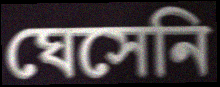
ঘেসেনি